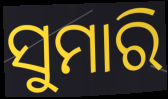
ସୁମାରି